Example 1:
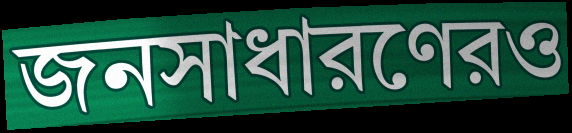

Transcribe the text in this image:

জনসাধারণেরও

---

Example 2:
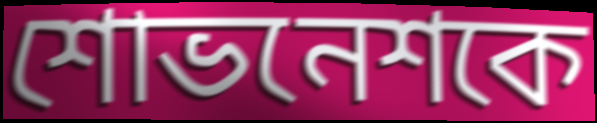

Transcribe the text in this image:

শোভনেশকে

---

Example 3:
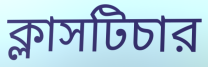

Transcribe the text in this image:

ক্লাসটিচার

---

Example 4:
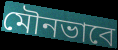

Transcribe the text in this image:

মৌনভাবে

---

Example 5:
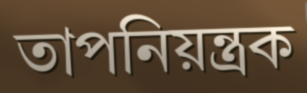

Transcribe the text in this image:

তাপনিয়ন্ত্রক